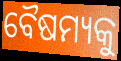
ବୈଷମ୍ୟକୁ